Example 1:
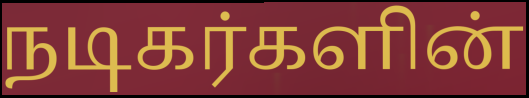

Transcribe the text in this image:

நடிகர்களின்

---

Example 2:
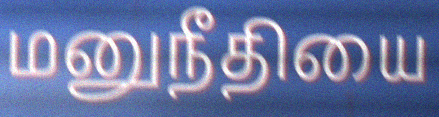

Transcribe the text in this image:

மனுநீதியை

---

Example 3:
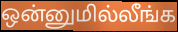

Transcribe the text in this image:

ஒன்னுமில்லீங்க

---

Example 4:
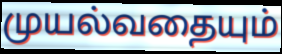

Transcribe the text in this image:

முயல்வதையும்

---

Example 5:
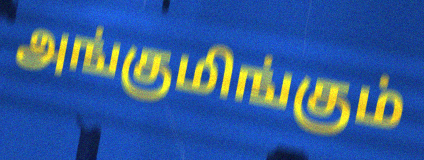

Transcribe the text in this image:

அங்குமிங்கும்